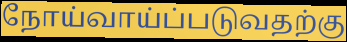
நோய்வாய்ப்படுவதற்கு